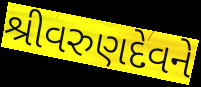
શ્રીવરુણદેવને